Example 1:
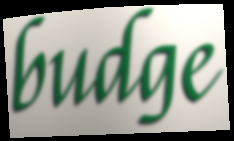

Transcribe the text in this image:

budge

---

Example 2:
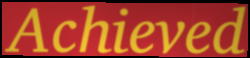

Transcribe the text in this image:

Achieved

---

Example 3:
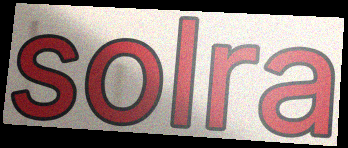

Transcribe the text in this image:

solra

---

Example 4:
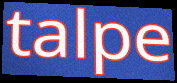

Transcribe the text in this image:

talpe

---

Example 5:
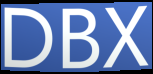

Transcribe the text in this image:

DBX